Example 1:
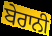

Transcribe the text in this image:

ਬੇਰਾਨੀ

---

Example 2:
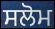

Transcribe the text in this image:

ਸਲੋਮ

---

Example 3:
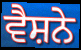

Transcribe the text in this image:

ਵੈਸ਼ਨੇ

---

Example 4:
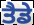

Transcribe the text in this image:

ਤੈਡੇ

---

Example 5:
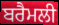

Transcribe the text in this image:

ਬਰੈਮਲੀ